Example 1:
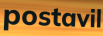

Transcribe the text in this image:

postavil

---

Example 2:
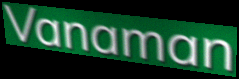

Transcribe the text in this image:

Vanaman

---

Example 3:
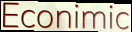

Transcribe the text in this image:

Econimic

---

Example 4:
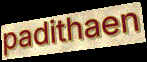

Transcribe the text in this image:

padithaen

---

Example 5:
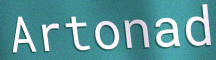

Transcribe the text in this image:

Artonad